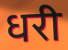
धरी